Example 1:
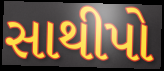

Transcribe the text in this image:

સાથીપો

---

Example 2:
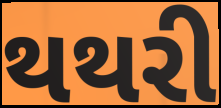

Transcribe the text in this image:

થથરી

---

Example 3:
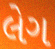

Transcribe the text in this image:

લેગ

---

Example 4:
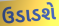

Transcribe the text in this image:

ઉડાડશે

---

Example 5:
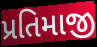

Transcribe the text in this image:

પ્રતિમાજી